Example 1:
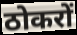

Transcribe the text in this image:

ठोकरों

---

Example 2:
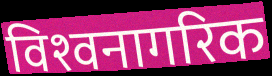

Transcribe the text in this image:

विश्वनागरिक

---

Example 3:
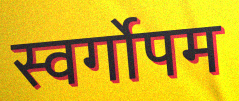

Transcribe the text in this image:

स्वर्गोपम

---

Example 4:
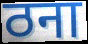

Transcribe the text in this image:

ठना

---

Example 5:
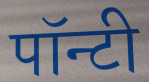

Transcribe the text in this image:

पॉन्टी